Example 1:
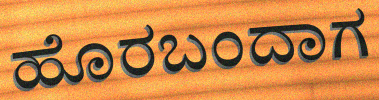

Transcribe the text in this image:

ಹೊರಬಂದಾಗ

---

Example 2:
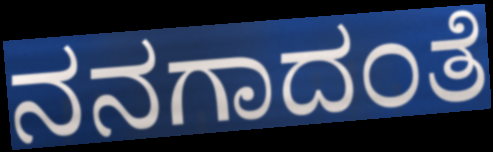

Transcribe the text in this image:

ನನಗಾದಂತೆ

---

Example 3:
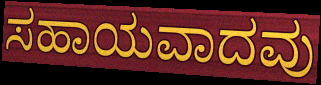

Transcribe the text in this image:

ಸಹಾಯವಾದವು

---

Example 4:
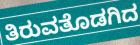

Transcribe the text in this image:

ತಿರುವತೊಡಗಿದ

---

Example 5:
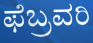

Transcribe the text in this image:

ಫೆಬ್ರವರಿ